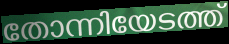
തോന്നിയേടത്ത്